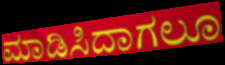
ಮಾಡಿಸಿದಾಗಲೂ